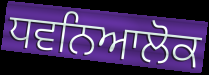
ਧਵਨਿਆਲੋਕ